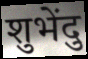
शुभेंदु